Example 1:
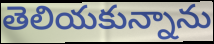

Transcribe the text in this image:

తెలియకున్నాను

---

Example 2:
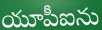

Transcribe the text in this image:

యూపీఐను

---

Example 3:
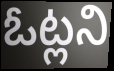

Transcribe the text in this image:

ఓట్లని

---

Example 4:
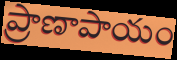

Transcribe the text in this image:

ప్రాణాపాయం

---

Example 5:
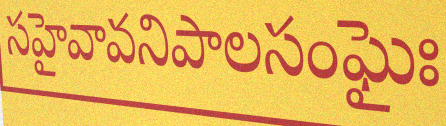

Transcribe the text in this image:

సహైవావనిపాలసంఘైః